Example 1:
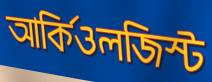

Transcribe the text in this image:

আর্কিওলজিস্ট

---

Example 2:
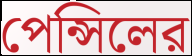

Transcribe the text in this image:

পেন্সিলের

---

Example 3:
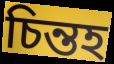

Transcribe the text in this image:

চিন্তহ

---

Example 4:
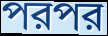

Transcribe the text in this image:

পরপর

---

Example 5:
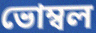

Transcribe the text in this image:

ভোম্বল